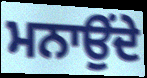
ਮਨਾਉਂਦੇ